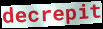
decrepit